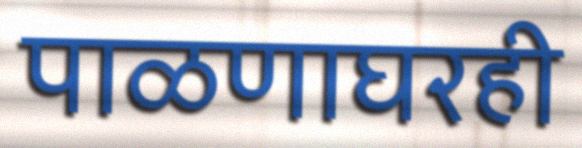
पाळणाघरही